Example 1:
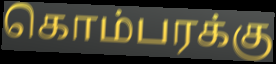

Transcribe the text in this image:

கொம்பரக்கு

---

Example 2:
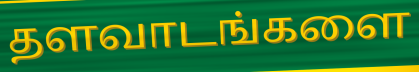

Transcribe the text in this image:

தளவாடங்களை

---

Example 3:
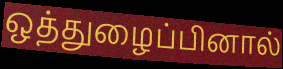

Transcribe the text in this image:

ஒத்துழைப்பினால்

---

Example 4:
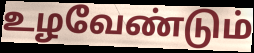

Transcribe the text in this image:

உழவேண்டும்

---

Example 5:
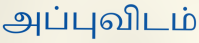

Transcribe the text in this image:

அப்புவிடம்